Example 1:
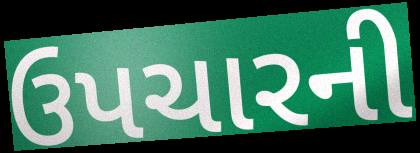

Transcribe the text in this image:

ઉપચારની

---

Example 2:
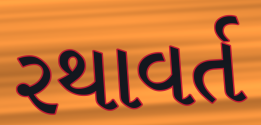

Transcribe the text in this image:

રથાવર્ત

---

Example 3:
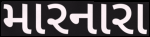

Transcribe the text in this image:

મારનારા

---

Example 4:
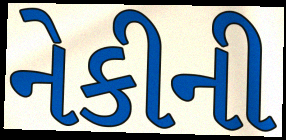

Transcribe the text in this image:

નેકીની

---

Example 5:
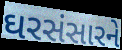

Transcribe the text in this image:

ઘરસંસારને